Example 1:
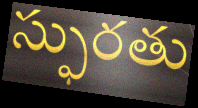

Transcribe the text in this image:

స్ఫురతు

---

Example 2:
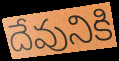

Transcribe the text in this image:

దేవునికి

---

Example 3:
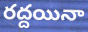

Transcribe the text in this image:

రద్దయినా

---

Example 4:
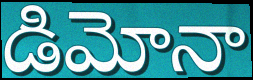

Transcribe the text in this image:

డిమోనా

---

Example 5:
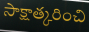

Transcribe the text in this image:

సాక్షాత్కరించి